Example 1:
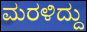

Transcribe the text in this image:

ಮರಳಿದ್ದು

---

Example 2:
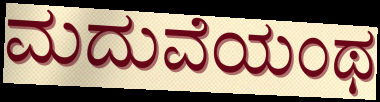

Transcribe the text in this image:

ಮದುವೆಯಂಥ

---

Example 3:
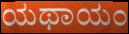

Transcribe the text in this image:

ಯಥಾಯಂ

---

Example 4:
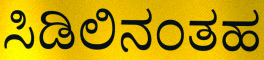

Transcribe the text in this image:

ಸಿಡಿಲಿನಂತಹ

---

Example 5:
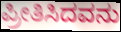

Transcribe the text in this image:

ಪ್ರೀತಿಸಿದವನು